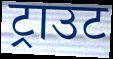
ट्राउट